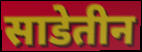
साडेतीन